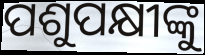
ପଶୁପକ୍ଷୀଙ୍କୁ